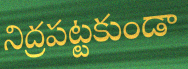
నిద్రపట్టకుండా